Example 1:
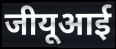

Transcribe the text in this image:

जीयूआई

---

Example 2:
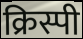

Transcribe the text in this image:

क्रिस्पी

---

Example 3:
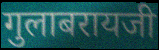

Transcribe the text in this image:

गुलाबरायजी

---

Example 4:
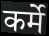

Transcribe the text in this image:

कर्मे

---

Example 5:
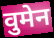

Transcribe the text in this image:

वुमेन